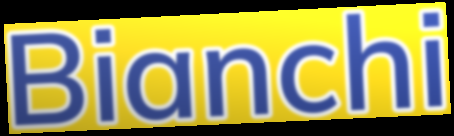
Bianchi